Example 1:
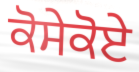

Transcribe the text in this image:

ਕੋਸੇਕੋਏ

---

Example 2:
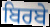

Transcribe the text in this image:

ਬਿਰਬੇ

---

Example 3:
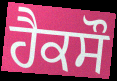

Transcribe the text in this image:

ਹੈਕਸੌ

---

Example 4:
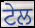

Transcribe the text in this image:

ਟੇਲ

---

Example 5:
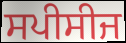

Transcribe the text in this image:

ਸਪੀਸੀਜ